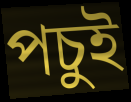
পচুই